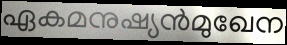
ഏകമനുഷ്യൻമുഖേന